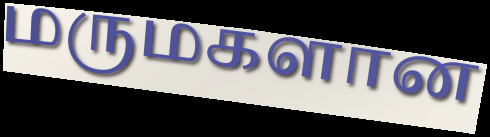
மருமகளான